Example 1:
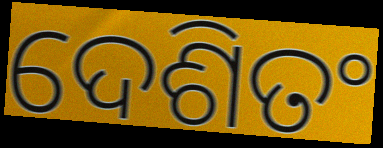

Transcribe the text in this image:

ଦେଶିତଂ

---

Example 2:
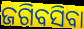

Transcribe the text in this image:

ଜଗିବସିବା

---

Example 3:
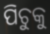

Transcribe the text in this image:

ପିଚୁକୁ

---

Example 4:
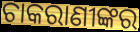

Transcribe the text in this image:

ଚାକରାଣୀଙ୍କର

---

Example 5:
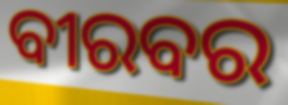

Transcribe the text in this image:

ବୀରବର